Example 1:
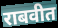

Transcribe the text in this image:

राबवीत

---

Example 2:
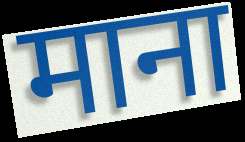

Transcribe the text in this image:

माना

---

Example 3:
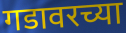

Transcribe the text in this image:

गडावरच्या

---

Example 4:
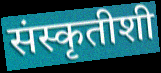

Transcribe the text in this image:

संस्कृतीशी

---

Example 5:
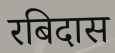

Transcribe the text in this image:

रबिदास